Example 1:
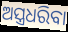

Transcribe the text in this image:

ଅସ୍ତ୍ରଧରିବା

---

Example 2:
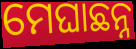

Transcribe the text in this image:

ମେଘାଛନ୍ନ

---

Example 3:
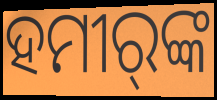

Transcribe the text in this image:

ହମୀର୍‍ଙ୍କ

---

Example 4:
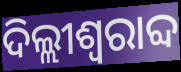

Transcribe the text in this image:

ଦିଲ୍ଲୀଶ୍ୱରାବ୍ଦ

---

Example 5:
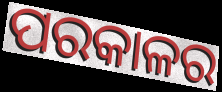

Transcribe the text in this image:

ପରକାଳର